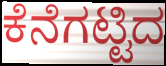
ಕೆನೆಗಟ್ಟಿದ